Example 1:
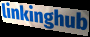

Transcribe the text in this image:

linkinghub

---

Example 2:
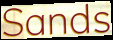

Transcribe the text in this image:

Sands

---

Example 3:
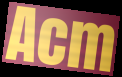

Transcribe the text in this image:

Acm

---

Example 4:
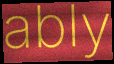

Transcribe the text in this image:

ably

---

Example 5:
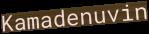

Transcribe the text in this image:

Kamadenuvin